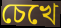
চেখে